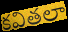
కవితలా